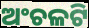
ଅଂଚଳଟି